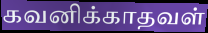
கவனிக்காதவள்